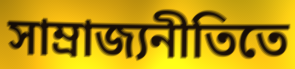
সাম্রাজ্যনীতিতে